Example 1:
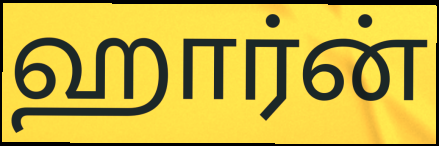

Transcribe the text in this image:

ஹார்ன்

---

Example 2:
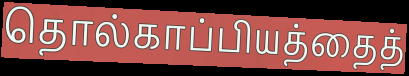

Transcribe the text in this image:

தொல்காப்பியத்தைத்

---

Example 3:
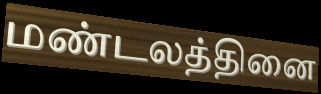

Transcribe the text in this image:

மண்டலத்தினை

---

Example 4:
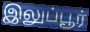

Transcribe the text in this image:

இலுப்பூர்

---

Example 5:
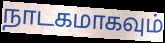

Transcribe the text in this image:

நாடகமாகவும்